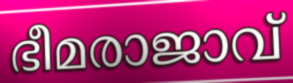
ഭീമരാജാവ്